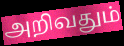
அறிவதும்